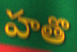
హతొ